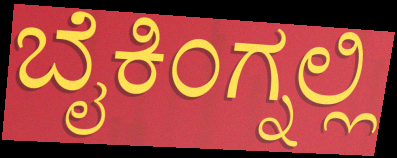
ಬೈಕಿಂಗ್ನಲ್ಲಿ